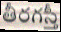
తీరగస్తీ